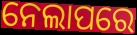
ନେଲାପରେ